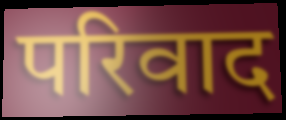
परिवाद